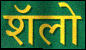
शॅलो